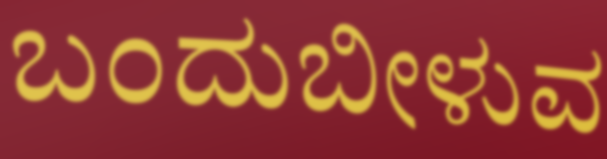
ಬಂದುಬೀಳುವ